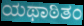
ಯಥಾಠಿತಂ